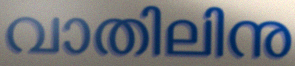
വാതിലിനു